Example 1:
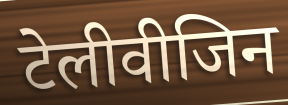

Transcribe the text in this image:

टेलीवीजिन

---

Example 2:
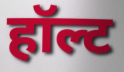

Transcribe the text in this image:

हॉल्ट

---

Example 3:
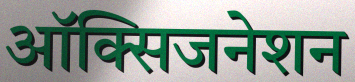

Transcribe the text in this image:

ऑक्सिजनेशन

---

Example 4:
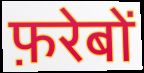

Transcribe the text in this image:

फ़रेबों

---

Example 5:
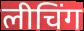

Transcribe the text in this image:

लीचिंग